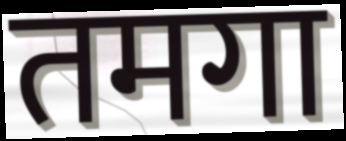
तमगा